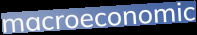
macroeconomic